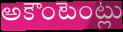
అకౌంటెంట్లు